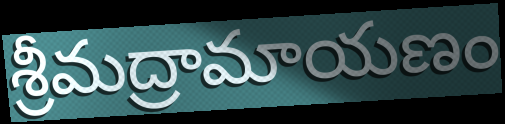
శ్రీమద్రామాయణం